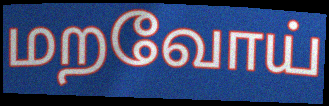
மறவோய்